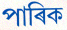
পাৰিক